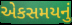
એકસમયનું